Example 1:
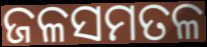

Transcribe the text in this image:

ଜଳସମତଳ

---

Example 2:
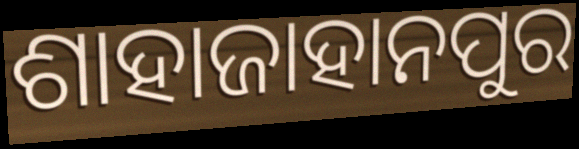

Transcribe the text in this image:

ଶାହାଜାହାନପୁର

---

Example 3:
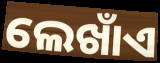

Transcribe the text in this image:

ଲେଖାଁଏ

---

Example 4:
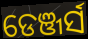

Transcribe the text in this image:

ଡେଞ୍ଜର୍ସ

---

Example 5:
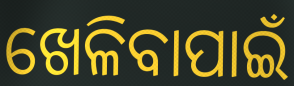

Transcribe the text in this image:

ଖେଳିବାପାଇଁ